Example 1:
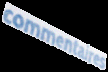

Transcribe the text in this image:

commentaires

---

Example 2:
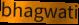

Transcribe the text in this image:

bhagwati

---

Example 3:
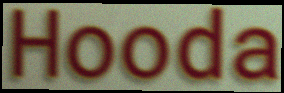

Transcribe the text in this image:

Hooda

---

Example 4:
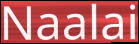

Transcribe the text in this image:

Naalai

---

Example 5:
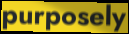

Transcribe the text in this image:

purposely